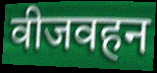
वीजवहन